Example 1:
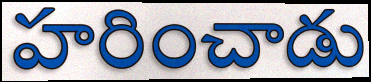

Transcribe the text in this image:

హరించాడు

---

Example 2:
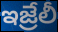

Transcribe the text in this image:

ఇజ్రేలీ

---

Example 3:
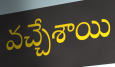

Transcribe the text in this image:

వచ్చేశాయి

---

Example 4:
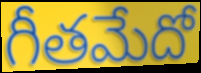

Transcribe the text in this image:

గీతమేదో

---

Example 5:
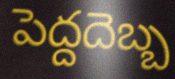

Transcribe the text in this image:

పెద్దదెబ్బ